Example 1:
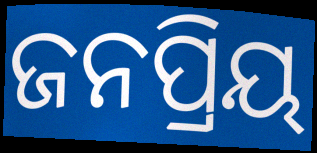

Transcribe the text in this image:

ଜନପ୍ରିୟ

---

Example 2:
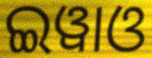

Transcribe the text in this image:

ଇୱାଓ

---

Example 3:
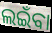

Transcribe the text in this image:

ଲଇଁବା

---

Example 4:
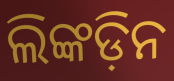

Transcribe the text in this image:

ଲିଙ୍କଡ଼ିନ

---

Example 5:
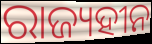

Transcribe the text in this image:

ରାଜ୍ୟହୀନ